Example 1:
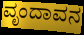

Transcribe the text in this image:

ವೃಂದಾವನ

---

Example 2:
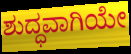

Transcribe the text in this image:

ಶುದ್ಧವಾಗಿಯೇ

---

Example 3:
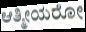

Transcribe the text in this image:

ಆತ್ಮೀಯರೋ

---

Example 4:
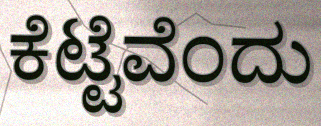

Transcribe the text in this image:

ಕೆಟ್ಟೆವೆಂದು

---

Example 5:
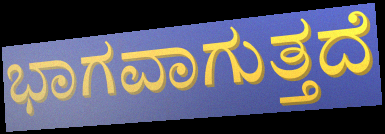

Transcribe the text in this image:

ಭಾಗವಾಗುತ್ತದೆ